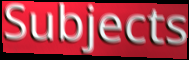
Subjects